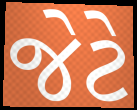
જેટે